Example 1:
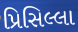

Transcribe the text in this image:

પ્રિસિલ્લા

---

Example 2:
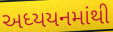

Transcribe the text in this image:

અધ્યયનમાંથી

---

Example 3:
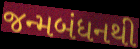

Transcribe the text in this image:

જન્મબંધનથી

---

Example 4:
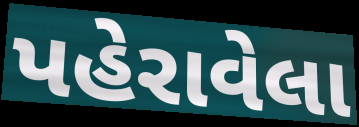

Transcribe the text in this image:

પહેરાવેલા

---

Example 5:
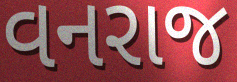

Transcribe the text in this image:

વનરાજ